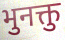
भुनक्तु